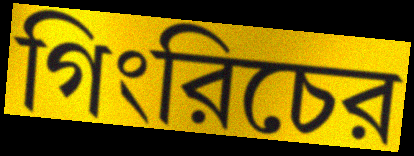
গিংরিচের